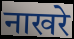
नाखरे